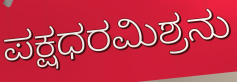
ಪಕ್ಷಧರಮಿಶ್ರನು